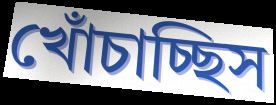
খোঁচাচ্ছিস